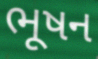
ભૂષન